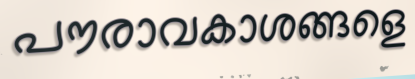
പൗരാവകാശങ്ങളെ